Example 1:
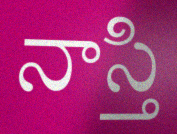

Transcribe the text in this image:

నాస్తి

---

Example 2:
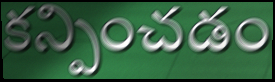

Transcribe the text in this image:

కన్పించడం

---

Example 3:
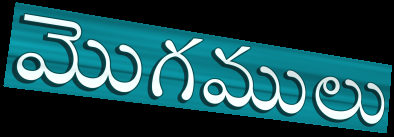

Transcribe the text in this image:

మొగములు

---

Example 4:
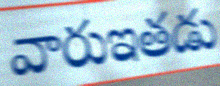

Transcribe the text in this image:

వారుఇతడు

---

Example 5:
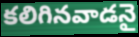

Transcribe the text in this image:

కలిగినవాడనై